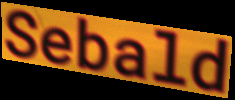
Sebald